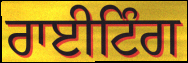
ਰਾਈਟਿੰਗ